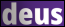
deus